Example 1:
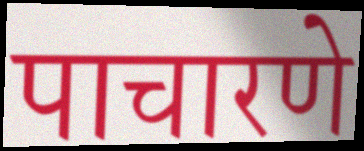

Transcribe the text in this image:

पाचारणे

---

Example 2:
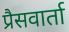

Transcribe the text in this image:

प्रैसवार्ता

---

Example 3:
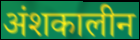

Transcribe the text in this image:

अंशकालीन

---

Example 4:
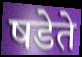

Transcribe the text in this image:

षडेते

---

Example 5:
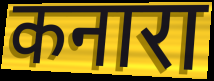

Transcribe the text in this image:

कनारा